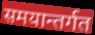
समयान्तर्गत